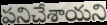
పనిచేశాయని